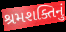
શ્રમશક્તિનું